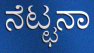
ನೆಟ್ಟನಾ